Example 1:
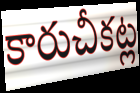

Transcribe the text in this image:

కారుచీకట్ల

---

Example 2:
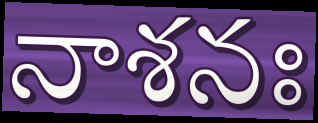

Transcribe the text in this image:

నాశనః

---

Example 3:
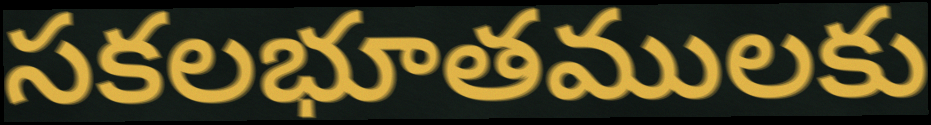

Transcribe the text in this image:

సకలభూతములకు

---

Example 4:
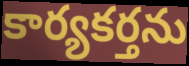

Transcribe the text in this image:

కార్యకర్తను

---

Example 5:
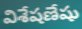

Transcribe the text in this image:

విశేషణేషు